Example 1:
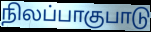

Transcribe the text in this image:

நிலப்பாகுபாடு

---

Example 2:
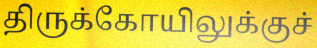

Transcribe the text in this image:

திருக்கோயிலுக்குச்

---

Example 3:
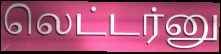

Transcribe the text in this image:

லெட்டர்னு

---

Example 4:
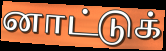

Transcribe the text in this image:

னாட்டுக்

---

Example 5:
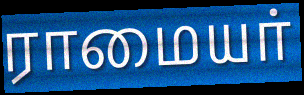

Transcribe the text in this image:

ராமையர்